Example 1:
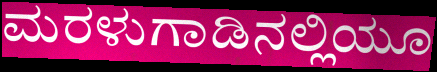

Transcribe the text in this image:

ಮರಳುಗಾಡಿನಲ್ಲಿಯೂ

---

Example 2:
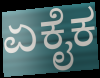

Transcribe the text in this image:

ಏಕೈಕ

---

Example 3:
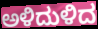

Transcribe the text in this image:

ಅಳಿದುಳಿದ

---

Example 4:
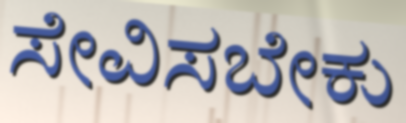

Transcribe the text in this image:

ಸೇವಿಸಬೇಕು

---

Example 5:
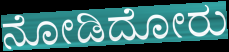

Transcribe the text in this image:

ನೋಡಿದೋರು